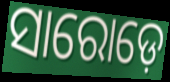
ସାରୋଡ଼େ